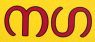
നഗ